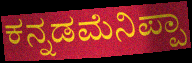
ಕನ್ನಡಮೆನಿಪ್ಪಾ